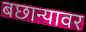
बछान्यावर